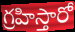
గ్రహిస్తారో